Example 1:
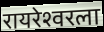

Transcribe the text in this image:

रायरेश्वरला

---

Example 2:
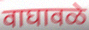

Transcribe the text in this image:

वाघावळे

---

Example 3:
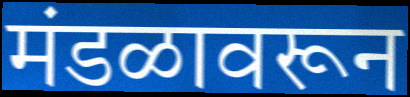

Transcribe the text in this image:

मंडळावरून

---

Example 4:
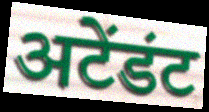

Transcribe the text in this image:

अटेंडंट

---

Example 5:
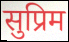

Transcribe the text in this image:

सुप्रिम